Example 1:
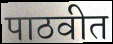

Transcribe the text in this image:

पाठवीत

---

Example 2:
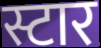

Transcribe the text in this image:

स्टार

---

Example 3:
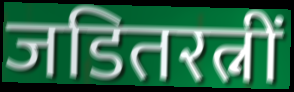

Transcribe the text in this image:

जडितरत्नीं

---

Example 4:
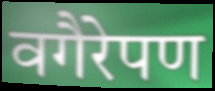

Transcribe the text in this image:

वगैरेपण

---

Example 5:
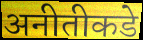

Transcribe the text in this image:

अनीतीकडे